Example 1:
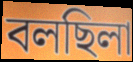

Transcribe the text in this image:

বলছিলা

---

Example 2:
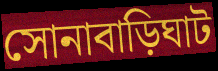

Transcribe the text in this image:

সোনাবাড়িঘাট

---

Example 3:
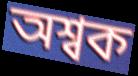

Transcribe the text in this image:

অশ্বক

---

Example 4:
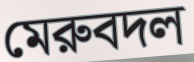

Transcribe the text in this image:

মেরুবদল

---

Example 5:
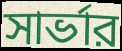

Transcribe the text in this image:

সার্ভার